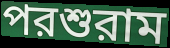
পরশুরাম